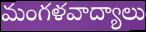
మంగళవాద్యాలు